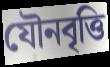
যৌনবৃত্তি